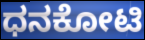
ಧನಕೋಟಿ